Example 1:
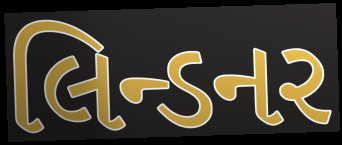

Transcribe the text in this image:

લિન્ડનર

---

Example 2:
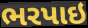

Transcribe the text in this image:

ભરપાઇ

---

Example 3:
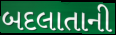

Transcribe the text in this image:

બદલાતાની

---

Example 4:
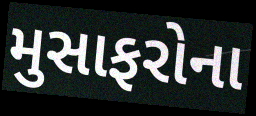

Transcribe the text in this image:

મુસાફરોના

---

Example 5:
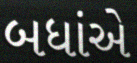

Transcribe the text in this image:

બધાંએ